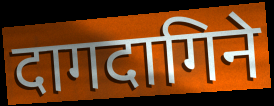
दागदागिने